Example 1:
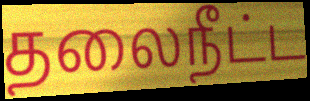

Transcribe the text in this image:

தலைநீட்ட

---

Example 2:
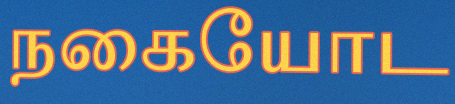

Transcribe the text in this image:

நகையோட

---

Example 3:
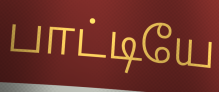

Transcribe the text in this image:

பாட்டியே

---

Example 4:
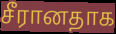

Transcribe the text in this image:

சீரானதாக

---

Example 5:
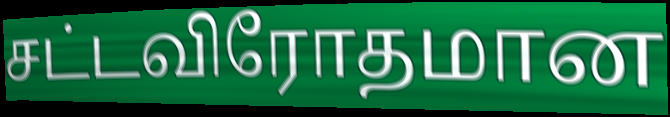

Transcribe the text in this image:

சட்டவிரோதமான